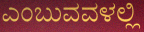
ಎಂಬುವವಳಲ್ಲಿ